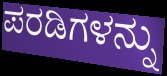
ಪರಡಿಗಳನ್ನು